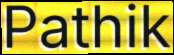
Pathik